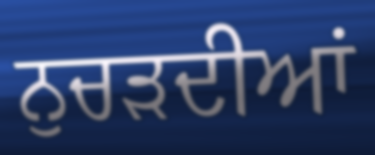
ਨੁਚੜਦੀਆਂ